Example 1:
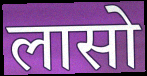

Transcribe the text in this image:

लासो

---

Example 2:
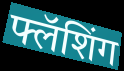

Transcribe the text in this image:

फ्लॅशिंग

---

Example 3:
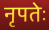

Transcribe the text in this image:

नृपतेः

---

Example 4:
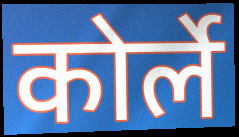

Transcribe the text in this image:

कोर्ले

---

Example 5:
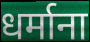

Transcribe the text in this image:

धर्माना